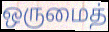
ஒருமைத்